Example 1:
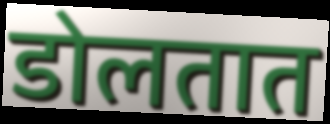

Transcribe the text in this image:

डोलतात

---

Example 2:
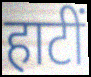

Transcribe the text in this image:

हाटीं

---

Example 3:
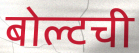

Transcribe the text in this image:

बोल्टची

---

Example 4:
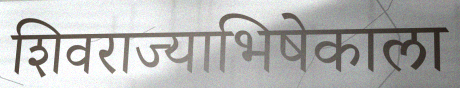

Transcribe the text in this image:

शिवराज्याभिषेकाला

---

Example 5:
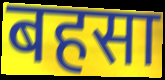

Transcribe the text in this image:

बहसा